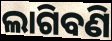
ଲାଗିବଣି